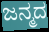
ಜನ್ಮದ